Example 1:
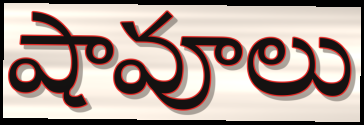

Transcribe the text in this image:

షావూలు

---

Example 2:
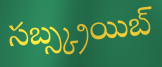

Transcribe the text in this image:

సబ్స్క్రయిబ్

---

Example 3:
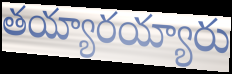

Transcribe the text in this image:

తయ్యారయ్యారు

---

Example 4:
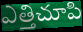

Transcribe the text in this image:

ఎత్తిచూపి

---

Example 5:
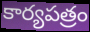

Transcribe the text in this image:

కార్యపత్రం